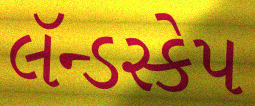
લૅન્ડસ્કેપ